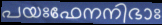
പയഃഫേനനിഭാഃ